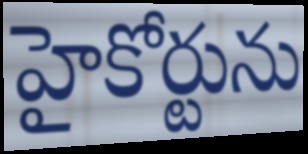
హైకోర్టును